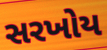
સરખોય